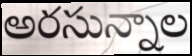
అరసున్నాల